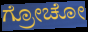
ಗ್ರೋಚೋ